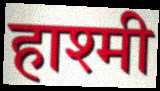
हाश्मी